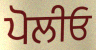
ਪੋਲੀਓ